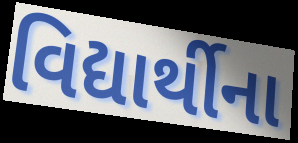
વિદ્યાર્થીના